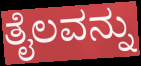
ತೈಲವನ್ನು